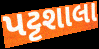
પટ્ટશાલા